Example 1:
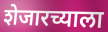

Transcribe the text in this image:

शेजारच्याला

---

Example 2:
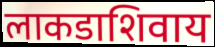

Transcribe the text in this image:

लाकडाशिवाय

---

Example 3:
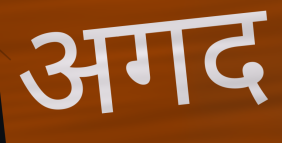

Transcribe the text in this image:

अगद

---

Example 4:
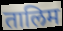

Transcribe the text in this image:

तालिम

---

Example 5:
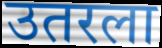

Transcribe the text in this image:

उतरला